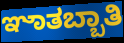
ಞಾತಬ್ಬಾತಿ